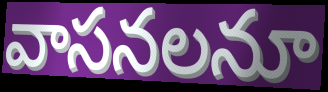
వాసనలనూ